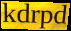
kdrpd